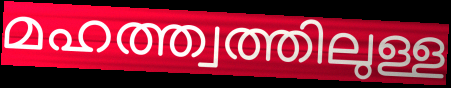
മഹത്ത്വത്തിലുള്ള